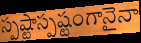
స్పష్టాస్పష్టంగానైనా